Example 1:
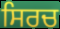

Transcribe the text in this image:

ਸਿਰਚ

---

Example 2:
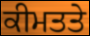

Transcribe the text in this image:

ਕੀਮਤਤੇ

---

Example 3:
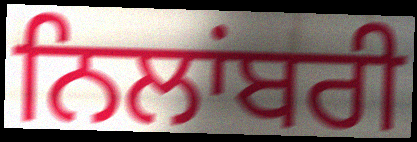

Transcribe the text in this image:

ਨਿਲਾਂਬਰੀ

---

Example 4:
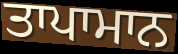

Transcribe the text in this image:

ਤਾਪਾਮਾਨ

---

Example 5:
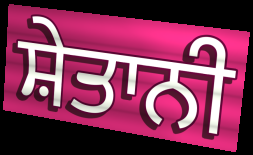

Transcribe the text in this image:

ਸ਼ੇਤਾਨੀ